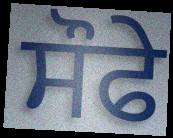
ਸੌਫੇ